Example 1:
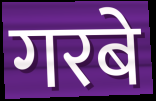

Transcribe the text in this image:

गरबे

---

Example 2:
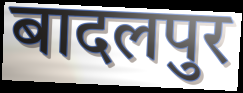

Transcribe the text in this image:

बादलपुर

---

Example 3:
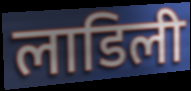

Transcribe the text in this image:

लाडिली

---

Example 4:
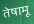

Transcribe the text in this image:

तेषामू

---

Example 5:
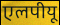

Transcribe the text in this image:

एलपीयू